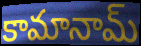
కామానామ్